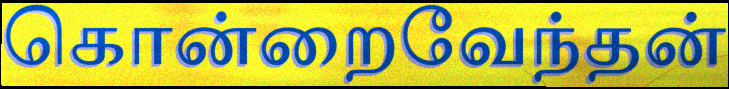
கொன்றைவேந்தன்